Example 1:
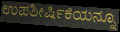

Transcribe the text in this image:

ಉಪಶೀರ್ಷಿಕೆಯನ್ನೂ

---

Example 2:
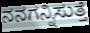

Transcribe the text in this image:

ನನಗನ್ನಿಸುತ್ತೆ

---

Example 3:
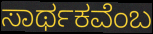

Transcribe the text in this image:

ಸಾರ್ಥಕವೆಂಬ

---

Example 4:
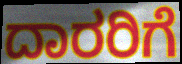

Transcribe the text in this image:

ದಾರರಿಗೆ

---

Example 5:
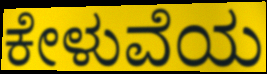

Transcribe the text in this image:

ಕೇಳುವೆಯ